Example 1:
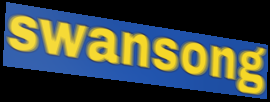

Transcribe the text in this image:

swansong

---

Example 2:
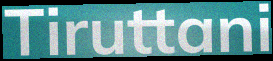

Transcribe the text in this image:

Tiruttani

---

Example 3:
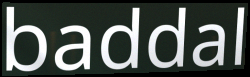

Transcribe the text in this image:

baddal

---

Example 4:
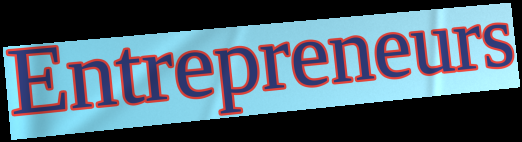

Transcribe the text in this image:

Entrepreneurs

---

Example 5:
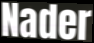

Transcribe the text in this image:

Nader